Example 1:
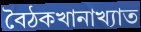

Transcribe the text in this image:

বৈঠকখানাখ্যাত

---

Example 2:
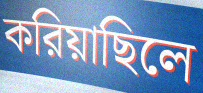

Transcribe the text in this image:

করিয়াছিলে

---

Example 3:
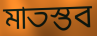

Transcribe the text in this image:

মাতস্তব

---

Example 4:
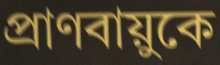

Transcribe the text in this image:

প্রাণবায়ুকে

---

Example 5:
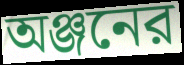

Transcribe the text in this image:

অঞ্জনের